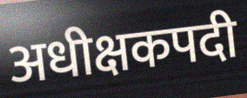
अधीक्षकपदी